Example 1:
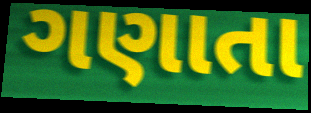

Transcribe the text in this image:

ગણાતા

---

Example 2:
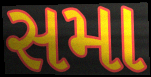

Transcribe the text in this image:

સમા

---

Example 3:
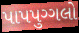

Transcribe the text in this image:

પાપપુગ્ગલો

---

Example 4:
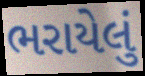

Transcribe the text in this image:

ભરાયેલું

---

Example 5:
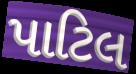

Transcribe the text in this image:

પાટિલ